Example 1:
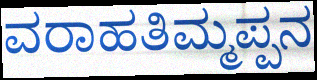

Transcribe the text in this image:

ವರಾಹತಿಮ್ಮಪ್ಪನ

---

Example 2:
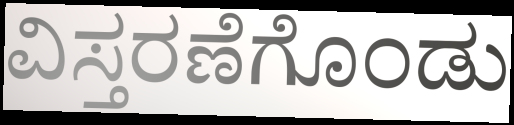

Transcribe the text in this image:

ವಿಸ್ತರಣೆಗೊಂಡು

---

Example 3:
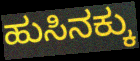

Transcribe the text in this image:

ಹುಸಿನಕ್ಕು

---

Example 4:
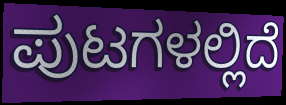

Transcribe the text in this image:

ಪುಟಗಳಲ್ಲಿದೆ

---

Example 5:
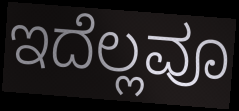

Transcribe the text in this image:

ಇದೆಲ್ಲವೂ